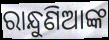
ରାନ୍ଧୁଣିଆଙ୍କ